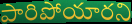
పారిపోయారని